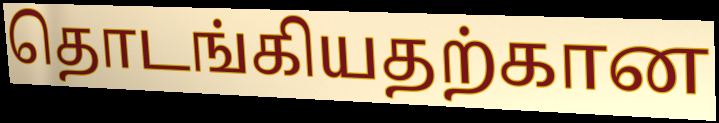
தொடங்கியதற்கான